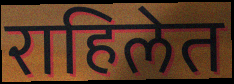
राहिलेत